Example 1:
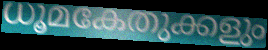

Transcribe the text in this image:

ധൂമകേതുക്കളും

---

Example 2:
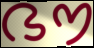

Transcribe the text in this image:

ഭൗ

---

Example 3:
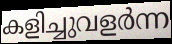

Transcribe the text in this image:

കളിച്ചുവളർന്ന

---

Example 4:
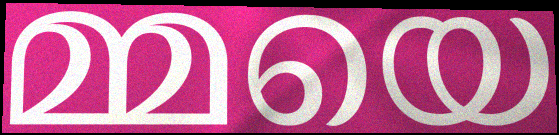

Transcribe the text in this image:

മ്മയെ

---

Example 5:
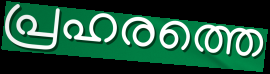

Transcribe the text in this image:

പ്രഹരത്തെ